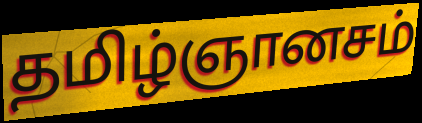
தமிழ்ஞானசம்